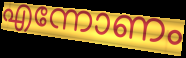
എന്നോണം